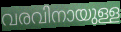
വരവിനായുള്ള